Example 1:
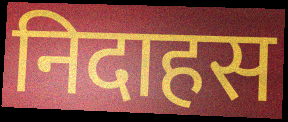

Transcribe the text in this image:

निदाहस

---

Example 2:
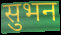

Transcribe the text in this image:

सुभन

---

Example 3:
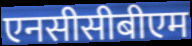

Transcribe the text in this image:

एनसीसीबीएम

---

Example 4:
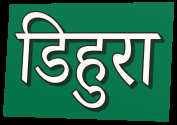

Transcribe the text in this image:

डिहुरा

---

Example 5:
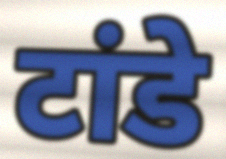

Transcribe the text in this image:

टांडे